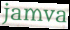
jamva